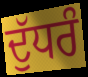
ਦੁੱਧਰੰ